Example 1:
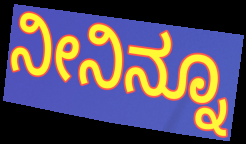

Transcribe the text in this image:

ನೀನಿನ್ನೂ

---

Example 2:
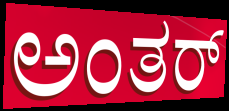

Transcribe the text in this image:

ಅಂತರ್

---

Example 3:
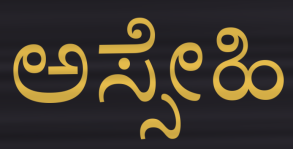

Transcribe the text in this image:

ಅಸ್ಸೇಹಿ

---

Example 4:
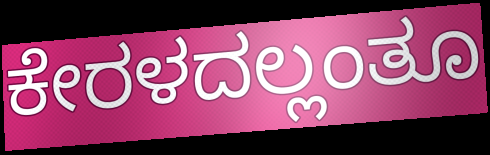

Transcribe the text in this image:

ಕೇರಳದಲ್ಲಂತೂ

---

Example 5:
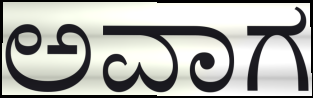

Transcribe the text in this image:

ಅವಾಗ